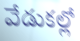
వేడుకల్లో